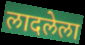
लादलेला